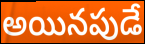
అయినపుడే